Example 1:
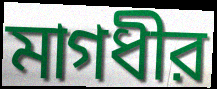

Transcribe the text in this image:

মাগধীর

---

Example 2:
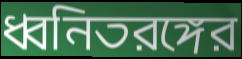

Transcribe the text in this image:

ধ্বনিতরঙ্গের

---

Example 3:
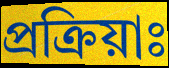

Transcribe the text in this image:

প্রক্রিয়াঃ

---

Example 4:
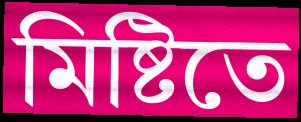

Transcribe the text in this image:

মিষ্টিতে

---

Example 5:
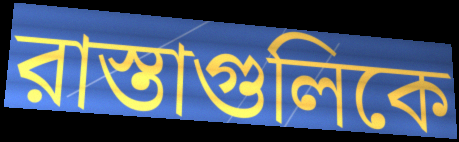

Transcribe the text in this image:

রাস্তাগুলিকে